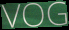
VOG